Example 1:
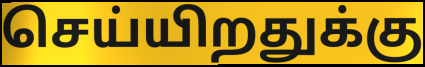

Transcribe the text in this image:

செய்யிறதுக்கு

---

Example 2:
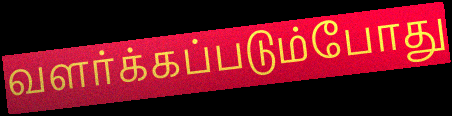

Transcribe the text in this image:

வளர்க்கப்படும்போது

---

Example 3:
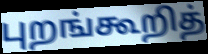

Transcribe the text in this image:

புறங்கூறித்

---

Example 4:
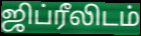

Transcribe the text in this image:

ஜிப்ரீலிடம்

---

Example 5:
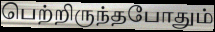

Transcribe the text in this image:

பெற்றிருந்தபோதும்